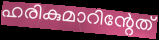
ഹരികുമാറിന്റേത്